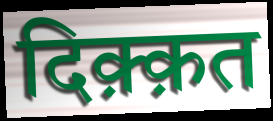
दिक़्क़त